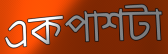
একপাশটা